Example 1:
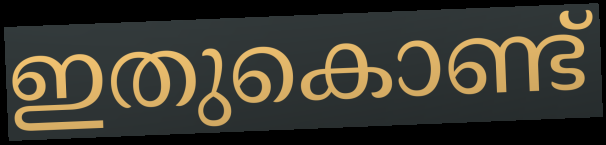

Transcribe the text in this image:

ഇതുകൊണ്ട്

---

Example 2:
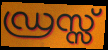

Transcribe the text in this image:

ഡ്രസ്സ്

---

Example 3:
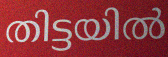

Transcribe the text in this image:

തിട്ടയിൽ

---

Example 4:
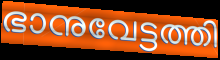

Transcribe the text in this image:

ഭാനുവേട്ടത്തി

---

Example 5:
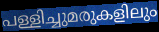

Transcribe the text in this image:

പള്ളിച്ചുമരുകളിലും